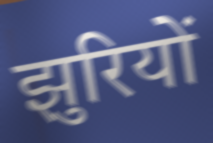
झुरियों